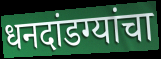
धनदांडग्यांचा